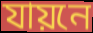
যায়নে